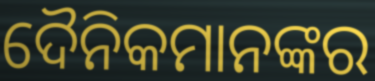
ଦୈନିକମାନଙ୍କର